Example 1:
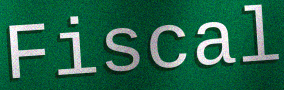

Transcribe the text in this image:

Fiscal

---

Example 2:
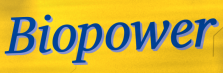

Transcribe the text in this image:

Biopower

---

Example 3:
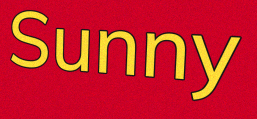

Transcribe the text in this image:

Sunny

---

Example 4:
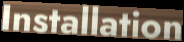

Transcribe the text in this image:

Installation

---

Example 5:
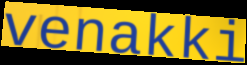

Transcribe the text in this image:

venakki